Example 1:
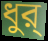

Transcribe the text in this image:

ধুর্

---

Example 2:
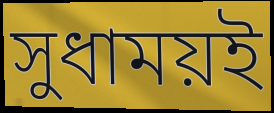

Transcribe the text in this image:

সুধাময়ই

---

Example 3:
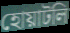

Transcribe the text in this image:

হোয়াটলি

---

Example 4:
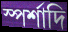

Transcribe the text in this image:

স্পর্শাদি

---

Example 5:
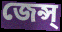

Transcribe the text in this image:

জেন্স্